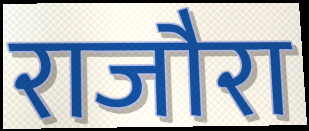
राजौरा